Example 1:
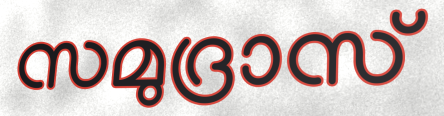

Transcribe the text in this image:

സമുദ്രാസ്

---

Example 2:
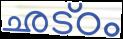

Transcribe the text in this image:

ഛട്ഠം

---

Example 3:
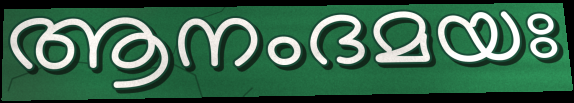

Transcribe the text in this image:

ആനംദമയഃ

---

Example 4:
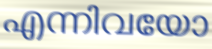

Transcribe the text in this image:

എന്നിവയോ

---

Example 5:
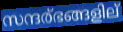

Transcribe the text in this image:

സന്ദര്ഭങ്ങളില്